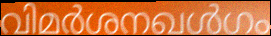
വിമർശനഖൾഗം